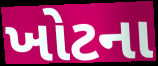
ખોટના